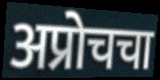
अप्रोचचा